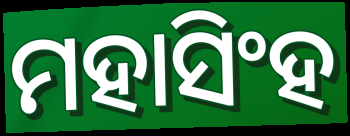
ମହାସିଂହ